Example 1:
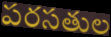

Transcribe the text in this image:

పరసతుల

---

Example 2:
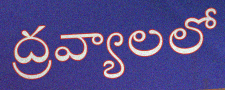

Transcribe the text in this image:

ద్రవ్యాలలో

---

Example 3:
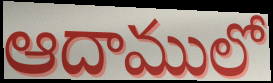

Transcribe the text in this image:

ఆదాములో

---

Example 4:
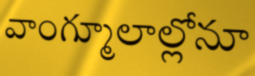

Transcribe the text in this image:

వాంగ్మూలాల్లోనూ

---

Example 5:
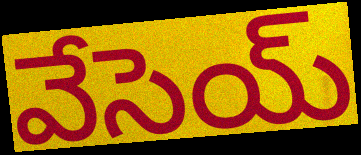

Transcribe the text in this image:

వేసెయ్